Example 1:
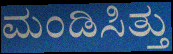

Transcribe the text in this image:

ಮಂಡಿಸಿತ್ತು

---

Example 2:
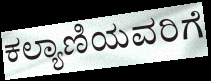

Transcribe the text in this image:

ಕಲ್ಯಾಣಿಯವರಿಗೆ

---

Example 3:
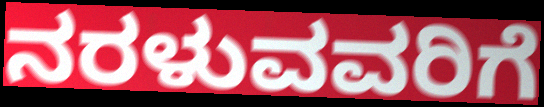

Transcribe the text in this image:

ನರಳುವವರಿಗೆ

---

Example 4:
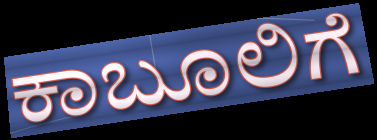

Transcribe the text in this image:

ಕಾಬೂಲಿಗೆ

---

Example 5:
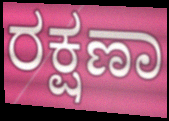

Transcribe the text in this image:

ರಕ್ಷಣಾ